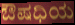
ಔಷಧಿಯ